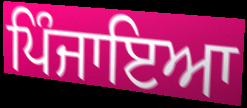
ਪਿੰਜਾਇਆ